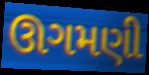
ઊગમણી